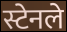
स्टेनले